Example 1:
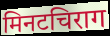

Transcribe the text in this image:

मिनटचिराग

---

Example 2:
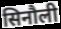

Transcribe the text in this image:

सिनौली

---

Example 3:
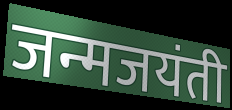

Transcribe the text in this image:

जन्मजयंती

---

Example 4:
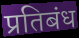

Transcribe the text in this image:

प्रतिबंध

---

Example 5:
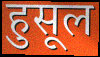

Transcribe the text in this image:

हुसूल